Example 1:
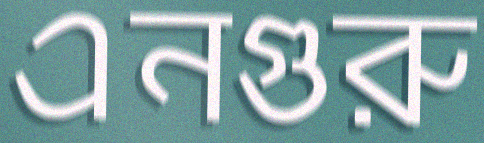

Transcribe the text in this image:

এনগুরু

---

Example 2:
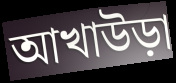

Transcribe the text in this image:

আখাউড়া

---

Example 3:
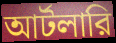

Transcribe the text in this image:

আর্টলারি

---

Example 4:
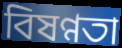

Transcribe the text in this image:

বিষণ্ণতা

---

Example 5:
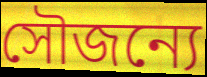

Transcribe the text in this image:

সৌজন্যে